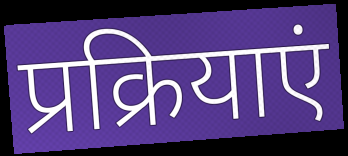
प्रक्रियाएं